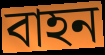
বাহন